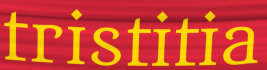
tristitia